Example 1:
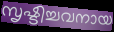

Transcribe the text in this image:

സൃഷ്ടിച്ചവനായ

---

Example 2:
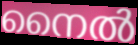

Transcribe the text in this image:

നൈൽ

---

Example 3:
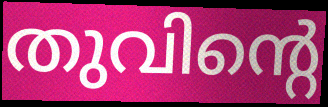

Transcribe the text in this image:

തുവിന്റെ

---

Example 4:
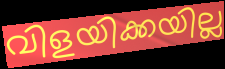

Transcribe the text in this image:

വിളയിക്കയില്ല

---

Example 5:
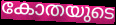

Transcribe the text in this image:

കോതയുടെ